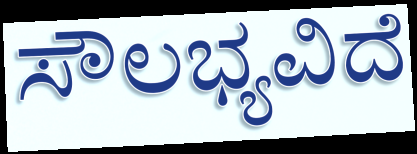
ಸೌಲಭ್ಯವಿದೆ